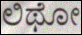
ಲಿಥೋ